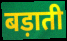
बड़ाती